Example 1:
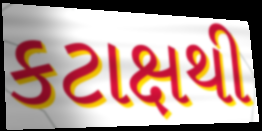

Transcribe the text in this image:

કટાક્ષથી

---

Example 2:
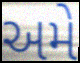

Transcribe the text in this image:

અમે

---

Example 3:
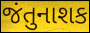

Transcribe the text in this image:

જંતુનાશક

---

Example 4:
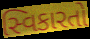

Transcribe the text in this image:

સ્વિકારતો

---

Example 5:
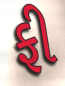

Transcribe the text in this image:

ફી